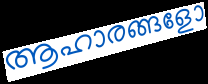
ആഹാരങ്ങളോ